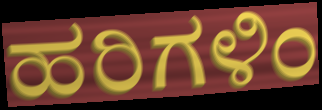
ಹರಿಗಳಿಂ